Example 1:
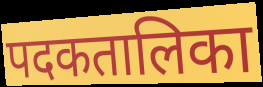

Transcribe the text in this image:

पदकतालिका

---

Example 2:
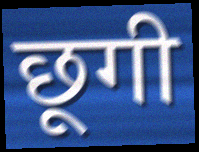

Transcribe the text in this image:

छूगी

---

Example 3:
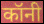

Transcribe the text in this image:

कॉनी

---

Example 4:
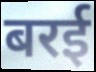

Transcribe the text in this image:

बरई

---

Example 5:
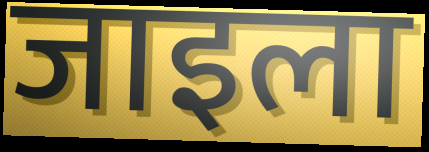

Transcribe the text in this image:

जाइला